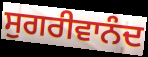
ਸੁਗਰੀਵਾਨੰਦ